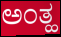
ಅಂತ್ಹ